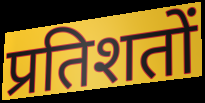
प्रतिशतों